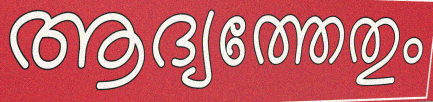
ആദ്യത്തേതും